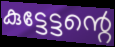
കുട്ടേട്ടന്റെ